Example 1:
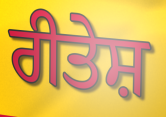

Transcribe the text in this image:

ਰੀਤੇਸ਼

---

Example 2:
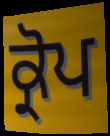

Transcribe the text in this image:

ਕ੍ਰੋਪ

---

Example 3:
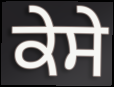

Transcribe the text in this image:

ਕੇਸੇ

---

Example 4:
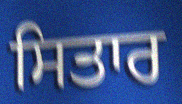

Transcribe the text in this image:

ਸਿਤਾਰ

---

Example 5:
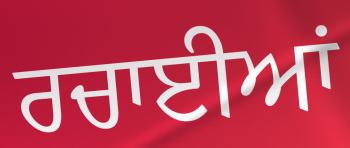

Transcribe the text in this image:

ਰਚਾਈਆਂ